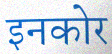
इनकोर